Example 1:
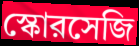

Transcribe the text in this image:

স্কোরসেজি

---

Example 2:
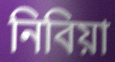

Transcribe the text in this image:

নিবিয়া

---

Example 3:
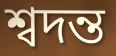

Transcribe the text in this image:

শ্বদন্ত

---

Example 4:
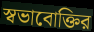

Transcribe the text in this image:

স্বভাবোক্তির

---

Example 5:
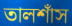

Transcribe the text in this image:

তালশাঁস